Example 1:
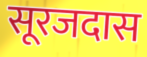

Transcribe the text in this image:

सूरजदास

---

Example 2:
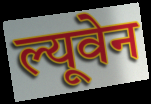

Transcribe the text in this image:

ल्यूवेन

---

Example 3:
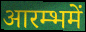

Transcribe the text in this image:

आरम्भमें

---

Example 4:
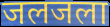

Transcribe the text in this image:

जलजला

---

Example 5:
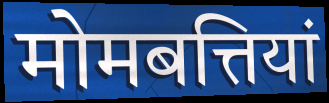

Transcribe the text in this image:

मोमबत्तियां